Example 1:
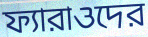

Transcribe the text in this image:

ফ্যারাওদের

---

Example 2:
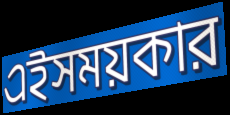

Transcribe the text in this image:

এইসময়কার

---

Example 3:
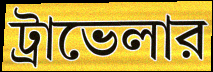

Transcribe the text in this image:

ট্রাভেলার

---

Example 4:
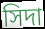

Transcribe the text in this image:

সিদা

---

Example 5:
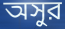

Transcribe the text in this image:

অসুর